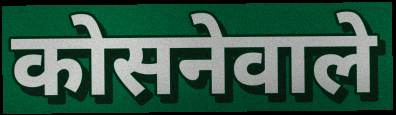
कोसनेवाले